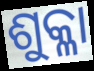
ଶୁକ୍ଳା